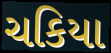
ચકિયા